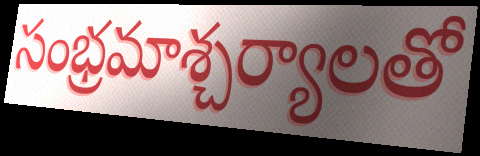
సంభ్రమాశ్చర్యాలతో